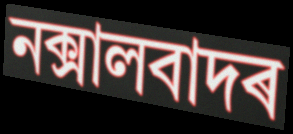
নক্সালবাদৰ